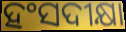
ହଂସଦୀକ୍ଷା